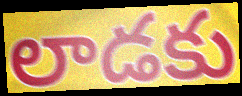
లాడకు